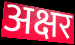
अक्षर